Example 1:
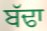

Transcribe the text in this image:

ਬੱਢਾ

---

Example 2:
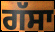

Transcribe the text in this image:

ਗੱਸਾ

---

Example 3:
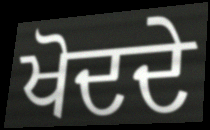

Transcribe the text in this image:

ਖੋਦਦੇ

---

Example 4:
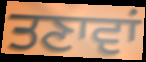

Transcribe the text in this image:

ਤਣਾਵਾਂ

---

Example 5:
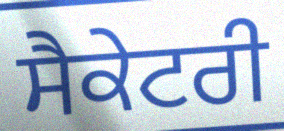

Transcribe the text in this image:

ਸੈਕੇਟਰੀ